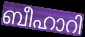
ബീഹാറി